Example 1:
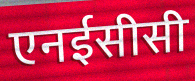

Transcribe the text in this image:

एनईसीसी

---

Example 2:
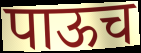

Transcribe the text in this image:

पाऊच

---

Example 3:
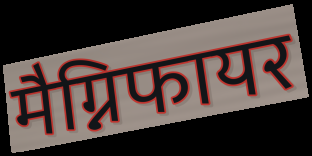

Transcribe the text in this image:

मैग्निफायर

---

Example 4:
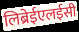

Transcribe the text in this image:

लिब्रेईएलईसी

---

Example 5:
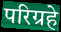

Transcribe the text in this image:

परिग्रहे